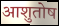
आशुतोष